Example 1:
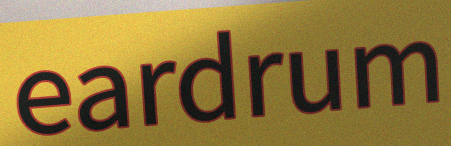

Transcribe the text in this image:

eardrum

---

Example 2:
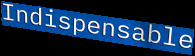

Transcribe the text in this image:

Indispensable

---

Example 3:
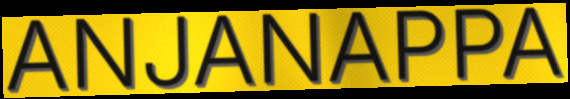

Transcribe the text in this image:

ANJANAPPA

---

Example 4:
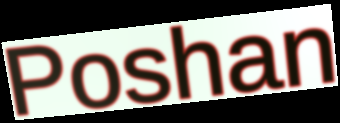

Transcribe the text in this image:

Poshan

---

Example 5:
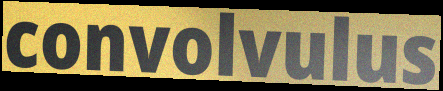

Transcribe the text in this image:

convolvulus